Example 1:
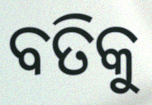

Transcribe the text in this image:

ବତିକୁ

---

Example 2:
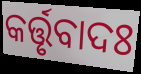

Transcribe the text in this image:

କର୍ତ୍ତୃବାଦଃ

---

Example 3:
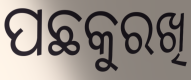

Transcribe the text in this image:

ପଛକୁରଖି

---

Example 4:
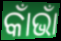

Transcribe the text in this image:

କାଁଭାଁ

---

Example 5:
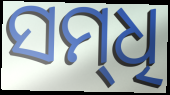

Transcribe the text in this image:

ସମ୍‌ଧି